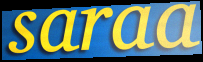
saraa